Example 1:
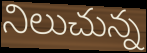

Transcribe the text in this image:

నిలుచున్న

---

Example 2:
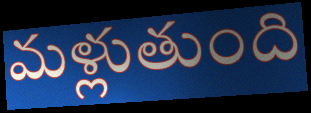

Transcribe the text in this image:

మళ్లుతుంది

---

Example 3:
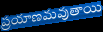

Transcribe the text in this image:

ప్రయాణమవుతాయి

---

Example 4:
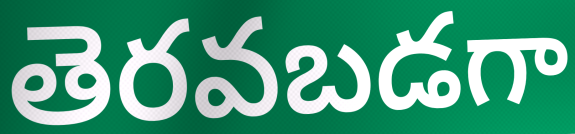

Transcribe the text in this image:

తెరవబడగా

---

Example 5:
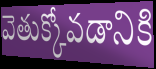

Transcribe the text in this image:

వెతుక్కోవడానికి